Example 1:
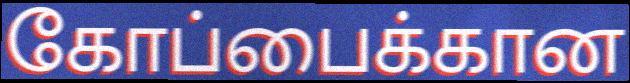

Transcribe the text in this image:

கோப்பைக்கான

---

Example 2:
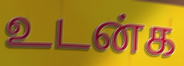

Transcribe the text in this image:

உடன்க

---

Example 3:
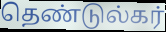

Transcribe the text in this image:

தெண்டுல்கர்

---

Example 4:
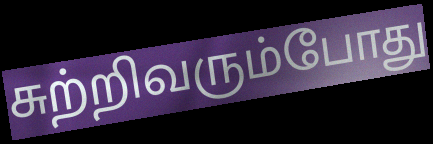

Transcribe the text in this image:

சுற்றிவரும்போது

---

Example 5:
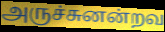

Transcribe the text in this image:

அருச்சுனன்றவ